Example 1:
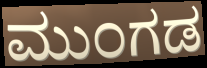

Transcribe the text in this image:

ಮುಂಗಡ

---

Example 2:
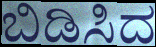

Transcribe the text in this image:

ಬಿಡಿಸಿದ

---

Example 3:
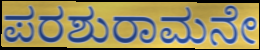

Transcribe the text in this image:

ಪರಶುರಾಮನೇ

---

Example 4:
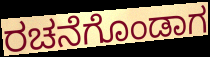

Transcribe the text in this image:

ರಚನೆಗೊಂಡಾಗ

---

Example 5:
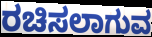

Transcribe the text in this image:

ರಚಿಸಲಾಗುವ